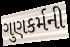
ગુણકર્મની